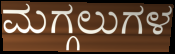
ಮಗ್ಗಲುಗಳ